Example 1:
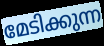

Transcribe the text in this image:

മേടിക്കുന്ന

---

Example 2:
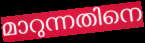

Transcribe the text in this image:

മാറുന്നതിനെ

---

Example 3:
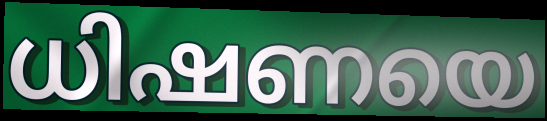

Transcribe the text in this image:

ധിഷണയെ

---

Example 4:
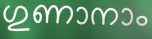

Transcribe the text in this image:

ഗുണാനാം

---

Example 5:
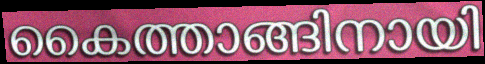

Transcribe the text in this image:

കൈത്താങ്ങിനായി